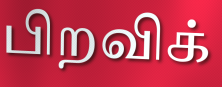
பிறவிக்